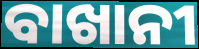
ବାଖାନୀ